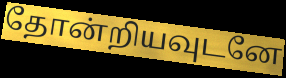
தோன்றியவுடனே